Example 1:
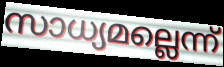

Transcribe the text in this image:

സാധ്യമല്ലെന്ന്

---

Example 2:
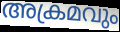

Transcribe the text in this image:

അക്രമവും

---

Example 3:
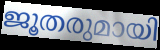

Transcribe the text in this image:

ജൂതരുമായി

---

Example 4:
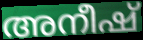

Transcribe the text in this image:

അനീഷ്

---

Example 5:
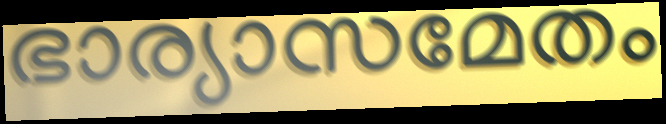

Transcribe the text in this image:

ഭാര്യാസമേതം